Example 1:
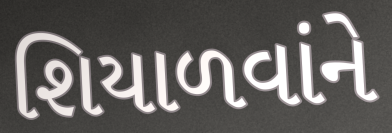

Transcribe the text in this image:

શિયાળવાંને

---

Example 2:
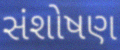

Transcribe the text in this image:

સંશોષણ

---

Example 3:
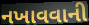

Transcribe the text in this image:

નખાવવાની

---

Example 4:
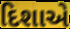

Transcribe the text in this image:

દિશાએ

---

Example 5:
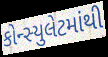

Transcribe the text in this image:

કોન્સ્યુલેટમાંથી